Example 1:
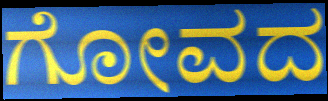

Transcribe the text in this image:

ಗೋವದ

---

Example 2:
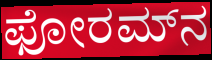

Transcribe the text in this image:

ಫೋರಮ್‌ನ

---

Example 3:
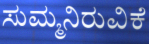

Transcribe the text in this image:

ಸುಮ್ಮನಿರುವಿಕೆ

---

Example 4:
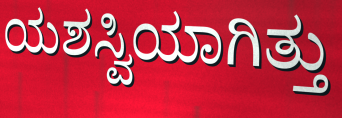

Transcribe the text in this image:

ಯಶಸ್ವಿಯಾಗಿತ್ತು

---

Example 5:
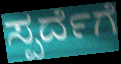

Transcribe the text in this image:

ಸ್ಪರ್ದೆಗೆ